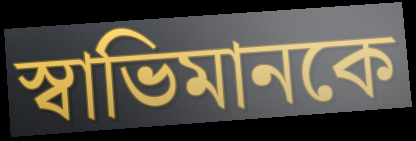
স্বাভিমানকে